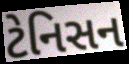
ટેનિસન